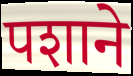
पशाने